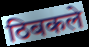
ठिबकले